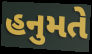
હનુમતે